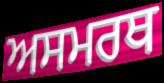
ਅਸਮਰਥ